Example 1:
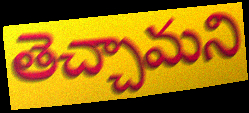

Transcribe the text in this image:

తెచ్చామని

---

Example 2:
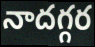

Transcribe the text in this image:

నాదగ్గర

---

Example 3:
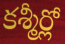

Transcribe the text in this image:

కశ్మీర్లో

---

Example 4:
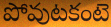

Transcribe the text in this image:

పోవుటకంటె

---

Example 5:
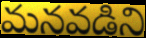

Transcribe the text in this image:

మనవడిని